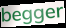
begger